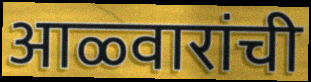
आळ्वारांची